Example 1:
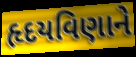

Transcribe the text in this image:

હૃદયવિણાને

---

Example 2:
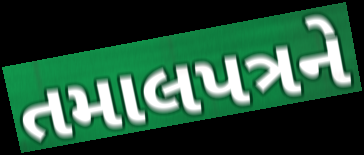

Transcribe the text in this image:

તમાલપત્રને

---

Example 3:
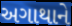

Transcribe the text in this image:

અગાથાને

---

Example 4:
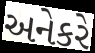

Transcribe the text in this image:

અનેકરે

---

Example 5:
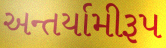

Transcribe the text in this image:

અન્તર્યામીરૂપ